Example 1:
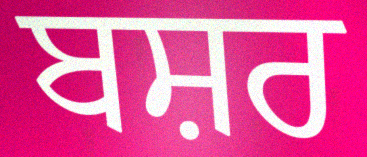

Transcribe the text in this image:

ਬਸ਼ਰ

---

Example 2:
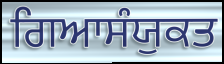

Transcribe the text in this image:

ਗਿਆਸੰਯੁਕਤ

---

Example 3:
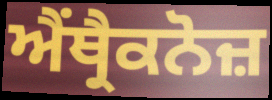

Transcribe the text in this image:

ਐਂਥ੍ਰੈਕਨੋਜ਼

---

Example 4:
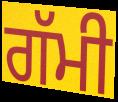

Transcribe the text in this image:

ਗੱਮੀ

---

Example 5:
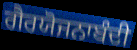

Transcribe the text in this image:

ਗੈਰਯੋਜਨਾਬੰਦੀ